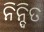
ନିନ୍ଦିତ